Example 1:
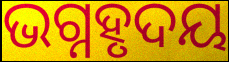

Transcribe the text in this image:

ଭଗ୍ନହୃଦୟ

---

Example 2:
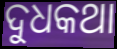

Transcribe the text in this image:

ଦୁଧକଥା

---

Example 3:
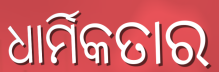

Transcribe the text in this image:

ଧାର୍ମିକତାର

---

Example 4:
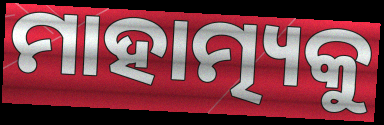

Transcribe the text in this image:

ମାହାତ୍ମ୍ୟକୁ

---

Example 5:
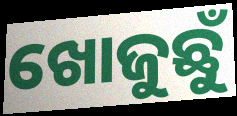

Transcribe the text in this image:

ଖୋଜୁଛୁଁ